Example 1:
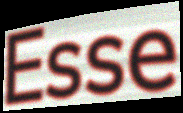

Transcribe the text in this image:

Esse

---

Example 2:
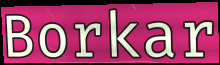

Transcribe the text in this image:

Borkar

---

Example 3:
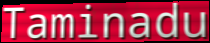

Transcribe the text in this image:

Taminadu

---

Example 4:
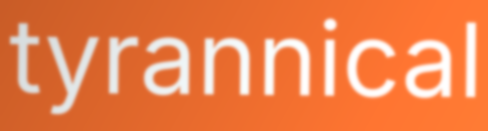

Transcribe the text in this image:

tyrannical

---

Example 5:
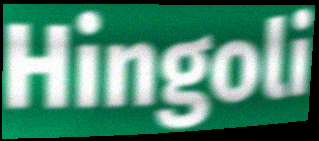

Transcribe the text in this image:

Hingoli